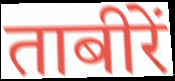
ताबीरें